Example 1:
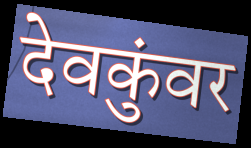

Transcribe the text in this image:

देवकुंवर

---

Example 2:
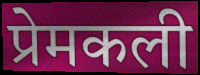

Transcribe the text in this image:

प्रेमकली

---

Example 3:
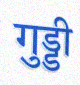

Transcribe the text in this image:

गुड्डी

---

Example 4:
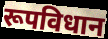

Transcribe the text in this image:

रूपविधान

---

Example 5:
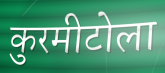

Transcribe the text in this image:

कुरमीटोला